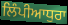
ਲਿੰਪੀਆਧੁਰਾ